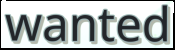
wanted